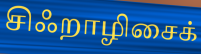
சிஃறாழிசைக்